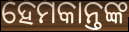
ହେମକାନ୍ତଙ୍କ